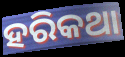
ହରିକଥା